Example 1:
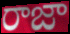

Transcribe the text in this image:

రాజా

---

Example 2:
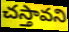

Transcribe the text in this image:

చస్తావని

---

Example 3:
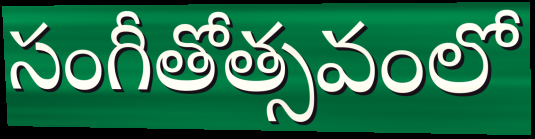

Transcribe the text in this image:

సంగీతోత్సవంలో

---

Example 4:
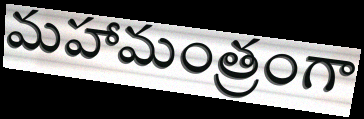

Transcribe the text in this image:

మహామంత్రంగా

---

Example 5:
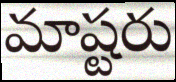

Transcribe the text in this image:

మాష్టరు